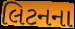
લિટનના